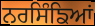
ਨਰਸਿੰਙਿਆਂ